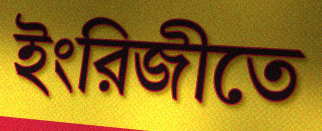
ইংরিজীতে